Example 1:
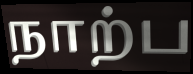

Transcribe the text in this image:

நாற்ப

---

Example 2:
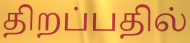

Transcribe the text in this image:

திறப்பதில்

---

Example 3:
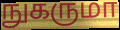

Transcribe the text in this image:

நுகருமா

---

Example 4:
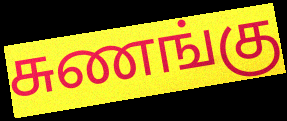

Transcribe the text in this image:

சுணங்கு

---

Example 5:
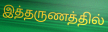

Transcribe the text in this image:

இத்தருணத்தில்